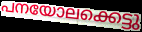
പനയോലക്കെട്ടു